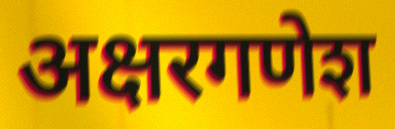
अक्षरगणेश